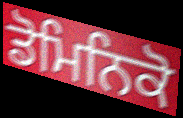
ਡੋਮਿਨਿਕੋ